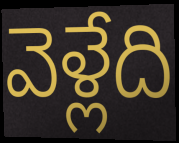
వెళ్లేది